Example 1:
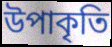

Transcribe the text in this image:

উপাকৃতি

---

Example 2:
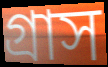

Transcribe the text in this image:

গ্ৰাস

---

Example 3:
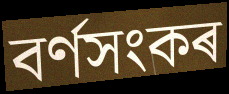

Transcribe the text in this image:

বৰ্ণসংকৰ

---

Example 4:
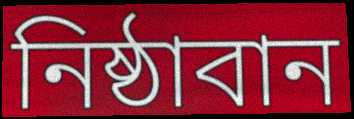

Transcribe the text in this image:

নিষ্ঠাবান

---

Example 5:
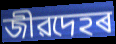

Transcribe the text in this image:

জীৱদেহৰ